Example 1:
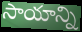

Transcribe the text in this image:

సాయాన్ని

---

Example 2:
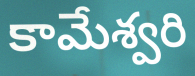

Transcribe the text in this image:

కామేశ్వరి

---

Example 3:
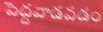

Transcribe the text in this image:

పెద్దవాడవడం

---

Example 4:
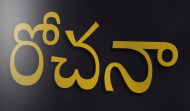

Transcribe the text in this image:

రోచనా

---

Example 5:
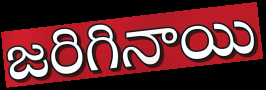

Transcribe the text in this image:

జరిగినాయి